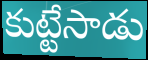
కుట్టేసాడు